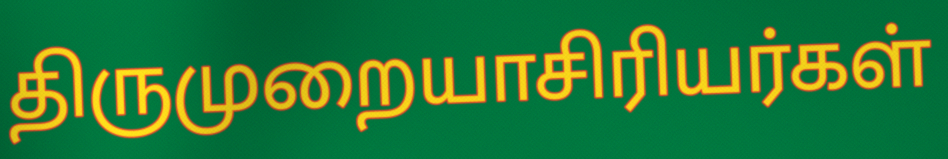
திருமுறையாசிரியர்கள்